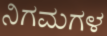
ನಿಗಮಗಳ